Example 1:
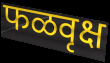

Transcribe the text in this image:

फळवृक्ष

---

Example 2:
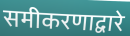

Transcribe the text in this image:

समीकरणाद्वारे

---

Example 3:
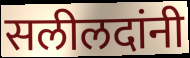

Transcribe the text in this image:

सलीलदांनी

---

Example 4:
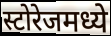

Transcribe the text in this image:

स्टोरेजमध्ये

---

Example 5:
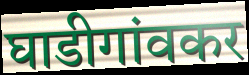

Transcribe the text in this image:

घाडीगांवकर